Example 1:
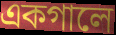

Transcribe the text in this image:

একগালে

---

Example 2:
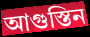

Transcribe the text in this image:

আগুস্তিন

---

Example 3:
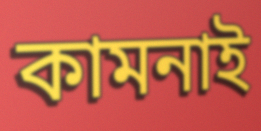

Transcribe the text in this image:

কামনাই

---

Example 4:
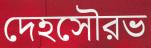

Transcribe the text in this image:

দেহসৌরভ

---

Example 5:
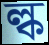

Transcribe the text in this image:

ল্ক